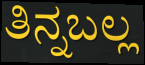
ತಿನ್ನಬಲ್ಲ